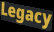
Legacy